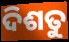
ଦିଶତୁ